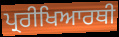
ਪ੍ਰਰੀਖਿਆਰਥੀ